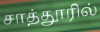
சாத்தூரில்